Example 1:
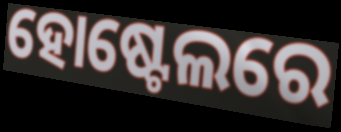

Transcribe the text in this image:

ହୋଷ୍ଟେଲରେ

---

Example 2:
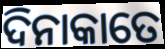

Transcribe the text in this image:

ଦିନାକାତେ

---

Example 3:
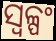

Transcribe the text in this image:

ସ୍ୱଳ୍ପଂ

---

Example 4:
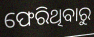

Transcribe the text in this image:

ଫେରିଥିବାରୁ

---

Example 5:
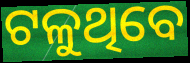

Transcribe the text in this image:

ଟଳୁଥିବେ